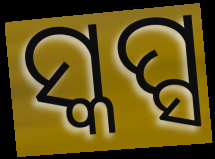
ସ୍କପ୍ସ